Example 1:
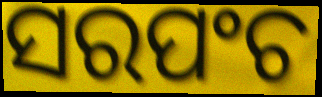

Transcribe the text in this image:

ସରପଂଚ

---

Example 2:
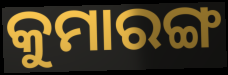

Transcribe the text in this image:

କୁମାରଙ୍ଗ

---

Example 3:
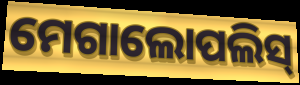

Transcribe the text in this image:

ମେଗାଲୋପଲିସ୍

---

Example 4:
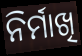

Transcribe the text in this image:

ନିର୍ମାଖି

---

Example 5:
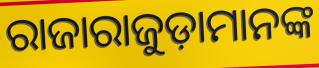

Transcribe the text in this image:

ରାଜାରାଜୁଡ଼ାମାନଙ୍କ